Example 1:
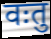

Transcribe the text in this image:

वःतु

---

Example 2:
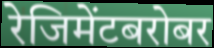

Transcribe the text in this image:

रेजिमेंटबरोबर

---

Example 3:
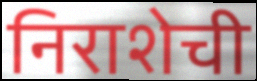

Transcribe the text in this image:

निराशेची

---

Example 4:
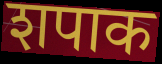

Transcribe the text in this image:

शपाक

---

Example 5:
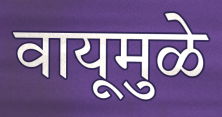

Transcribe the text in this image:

वायूमुळे